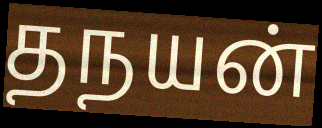
தநயன்